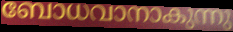
ബോധവാനാകുന്നു